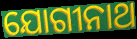
ଯୋଗୀନାଥ